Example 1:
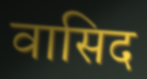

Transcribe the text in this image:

वासिद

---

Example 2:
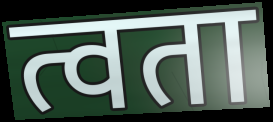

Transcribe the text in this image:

त्वता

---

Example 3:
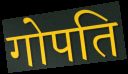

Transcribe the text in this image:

गोपति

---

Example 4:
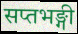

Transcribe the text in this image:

सप्तभङ्गी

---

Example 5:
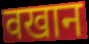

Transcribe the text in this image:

वखान